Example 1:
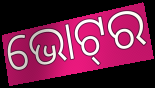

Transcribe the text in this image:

ଭୋଟ୍‍ର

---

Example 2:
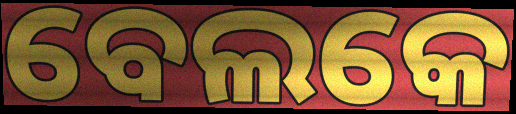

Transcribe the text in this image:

ବେଲକେ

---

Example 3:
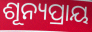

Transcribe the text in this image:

ଶୂନ୍ୟପ୍ରାୟ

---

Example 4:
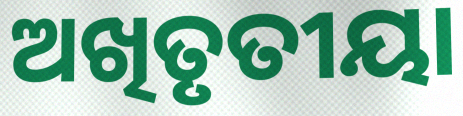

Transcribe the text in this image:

ଅଖିତୃତୀୟା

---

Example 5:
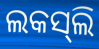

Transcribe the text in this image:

ଲକସ୍‍ଲି